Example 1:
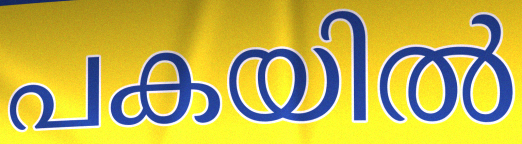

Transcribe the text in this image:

പകയിൽ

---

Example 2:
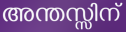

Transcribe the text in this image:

അന്തസ്സിന്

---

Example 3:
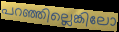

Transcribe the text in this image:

പറഞ്ഞില്ലെങ്കിലോ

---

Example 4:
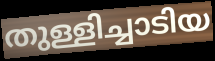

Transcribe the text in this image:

തുള്ളിച്ചാടിയ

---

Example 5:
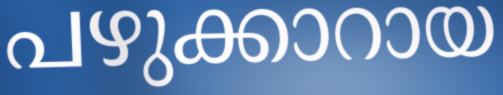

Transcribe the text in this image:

പഴുക്കാറായ